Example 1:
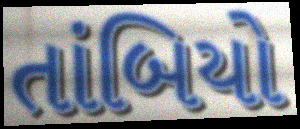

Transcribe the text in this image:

તાંબિયો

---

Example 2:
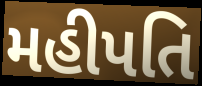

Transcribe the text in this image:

મહીપતિ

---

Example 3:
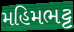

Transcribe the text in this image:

મહિમભટ્ટ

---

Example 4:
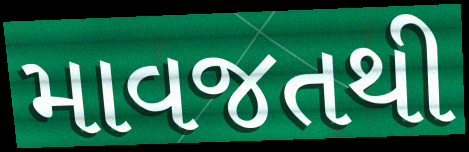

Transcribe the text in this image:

માવજતથી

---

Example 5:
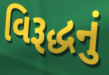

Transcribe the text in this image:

વિરૂદ્ધનું